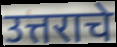
उत्तराचे